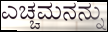
ಎಚ್ಚಮನನ್ನು